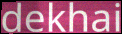
dekhai